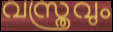
വസ്ത്രവും